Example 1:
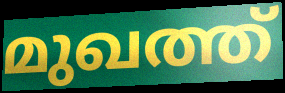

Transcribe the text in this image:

മുഖത്ത്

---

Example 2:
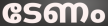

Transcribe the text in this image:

ടേണം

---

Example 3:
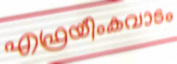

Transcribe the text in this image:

എഫ്രയീംകവാടം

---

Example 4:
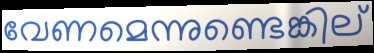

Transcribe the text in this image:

വേണമെന്നുണ്ടെങ്കില്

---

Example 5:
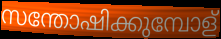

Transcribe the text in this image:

സന്തോഷിക്കുമ്പോള്